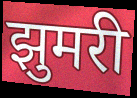
झुमरी